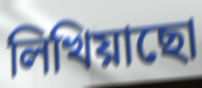
লিখিয়াছো